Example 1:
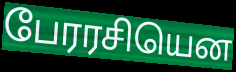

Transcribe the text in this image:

பேரரசியென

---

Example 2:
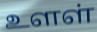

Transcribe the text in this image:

உளள்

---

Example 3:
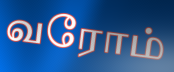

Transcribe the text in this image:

வரோம்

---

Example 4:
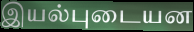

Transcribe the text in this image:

இயல்புடையன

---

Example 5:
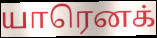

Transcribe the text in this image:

யாரெனக்